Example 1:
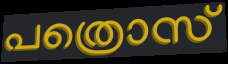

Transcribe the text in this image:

പത്രൊസ്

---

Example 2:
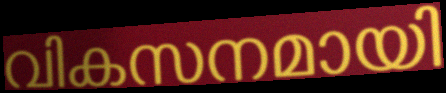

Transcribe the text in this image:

വികസനമായി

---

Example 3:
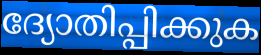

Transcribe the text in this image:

ദ്യോതിപ്പിക്കുക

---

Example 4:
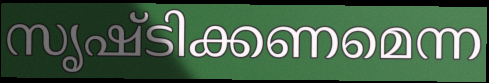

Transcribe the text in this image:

സൃഷ്ടിക്കണമെന്ന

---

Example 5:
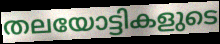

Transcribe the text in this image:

തലയോട്ടികളുടെ